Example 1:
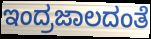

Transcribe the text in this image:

ಇಂದ್ರಜಾಲದಂತೆ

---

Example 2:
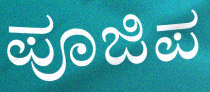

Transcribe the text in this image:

ಪೂಜಿಪ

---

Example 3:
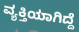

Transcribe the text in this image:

ವ್ಯಕ್ತಿಯಾಗಿದ್ದೆ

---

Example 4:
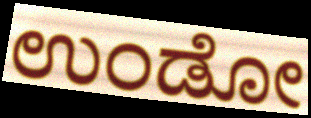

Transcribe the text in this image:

ಉಂಡೋ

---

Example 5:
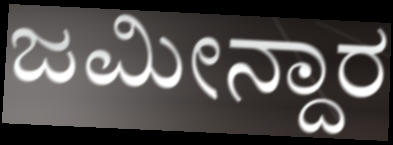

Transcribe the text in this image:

ಜಮೀನ್ದಾರ